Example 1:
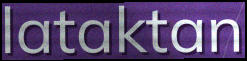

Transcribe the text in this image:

lataktan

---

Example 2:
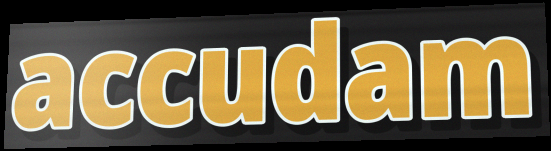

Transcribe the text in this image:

accudam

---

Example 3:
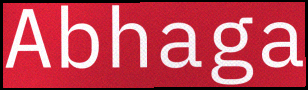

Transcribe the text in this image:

Abhaga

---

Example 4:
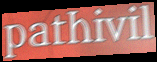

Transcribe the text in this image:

pathivil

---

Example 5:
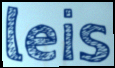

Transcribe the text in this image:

leis